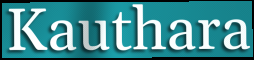
Kauthara